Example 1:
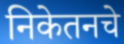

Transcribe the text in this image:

निकेतनचे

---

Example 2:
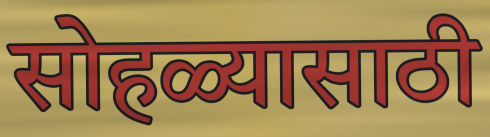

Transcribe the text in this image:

सोहळ्यासाठी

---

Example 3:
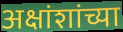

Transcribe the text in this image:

अक्षांशांच्या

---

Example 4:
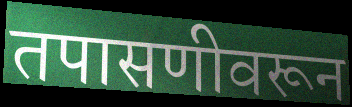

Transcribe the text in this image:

तपासणीवरून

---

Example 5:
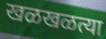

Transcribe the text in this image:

खळखळत्या